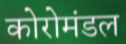
कोरोमंडल